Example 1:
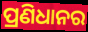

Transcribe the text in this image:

ପ୍ରଣିଧାନର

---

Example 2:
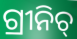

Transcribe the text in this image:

ଗ୍ରୀନିଚ୍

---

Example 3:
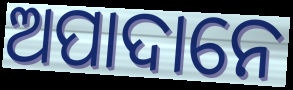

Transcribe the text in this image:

ଅପାଦାନେ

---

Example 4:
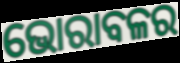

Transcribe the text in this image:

ଭୋରାବଳର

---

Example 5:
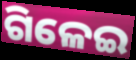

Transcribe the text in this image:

ଗିଳେଇ